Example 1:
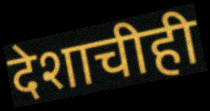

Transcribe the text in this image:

देशाचीही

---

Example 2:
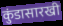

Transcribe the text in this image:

कुंडासारखी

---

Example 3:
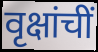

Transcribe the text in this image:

वृक्षांचीं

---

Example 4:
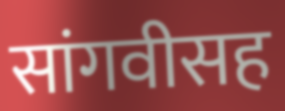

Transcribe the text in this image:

सांगवीसह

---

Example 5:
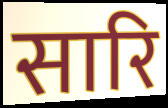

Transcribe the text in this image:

सारि